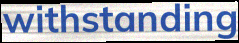
withstanding